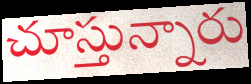
చూస్తున్నారు